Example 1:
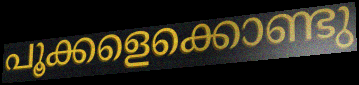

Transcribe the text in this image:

പൂക്കളെക്കൊണ്ടു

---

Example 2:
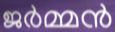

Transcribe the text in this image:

ജർമ്മൻ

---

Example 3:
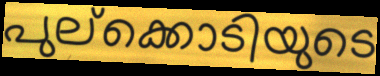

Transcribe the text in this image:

പുല്ക്കൊടിയുടെ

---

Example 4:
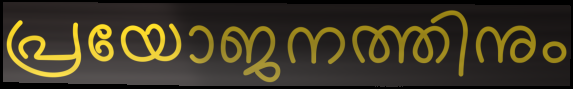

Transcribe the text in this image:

പ്രയോജനത്തിനും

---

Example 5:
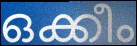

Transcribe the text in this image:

ഒക്കീം